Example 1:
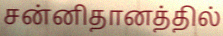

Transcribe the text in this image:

சன்னிதானத்தில்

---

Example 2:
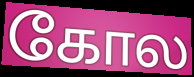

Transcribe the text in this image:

கோல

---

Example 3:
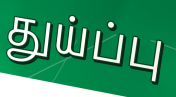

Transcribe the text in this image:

துய்ப்பு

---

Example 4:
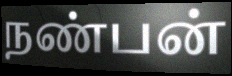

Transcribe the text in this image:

நண்பன்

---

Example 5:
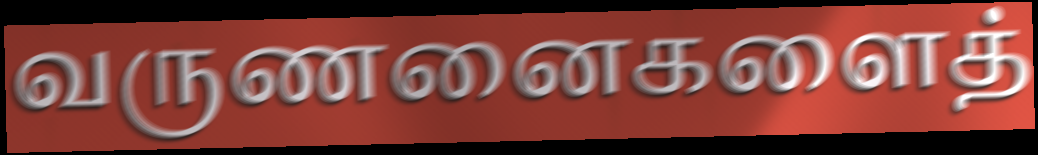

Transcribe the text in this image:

வருணனைகளைத்